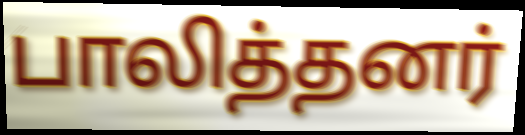
பாலித்தனர்